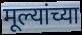
मूल्यांच्या